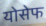
योसेफ